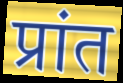
प्रांत